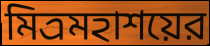
মিত্রমহাশয়ের